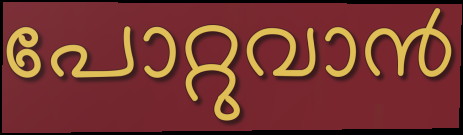
പോറ്റുവാൻ